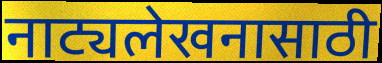
नाट्यलेखनासाठी